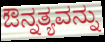
ಔನ್ನತ್ಯವನ್ನು